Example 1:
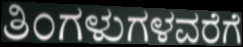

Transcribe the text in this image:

ತಿಂಗಳುಗಳವರೆಗೆ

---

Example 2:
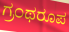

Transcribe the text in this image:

ಗ್ರಂಥರೂಪ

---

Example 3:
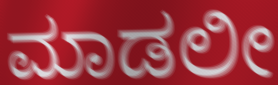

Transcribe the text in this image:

ಮಾಡಲೀ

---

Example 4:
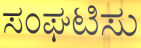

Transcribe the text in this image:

ಸಂಘಟಿಸು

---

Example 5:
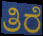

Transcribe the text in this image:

ತಿರೆ